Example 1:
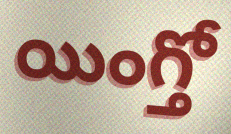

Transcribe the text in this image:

యింగ్తో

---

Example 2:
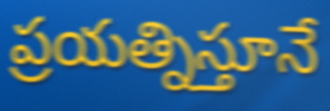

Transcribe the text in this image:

ప్రయత్నిస్తూనే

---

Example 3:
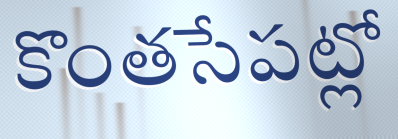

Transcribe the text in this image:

కొంతసేపట్లో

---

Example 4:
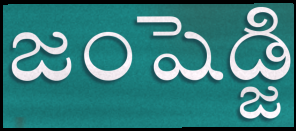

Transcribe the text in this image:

జంషెడ్జి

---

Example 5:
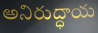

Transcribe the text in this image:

అనిరుద్ధాయ